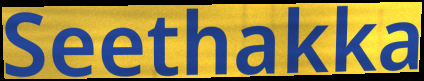
Seethakka